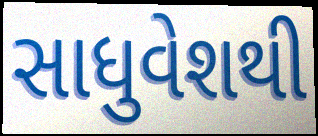
સાધુવેશથી